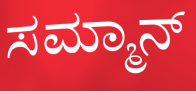
ಸಮ್ಮಾನ್